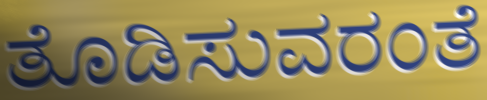
ತೊಡಿಸುವರಂತೆ